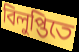
বিলুপ্তিতে